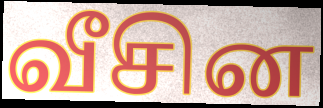
வீசின